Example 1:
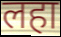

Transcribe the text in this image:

लहा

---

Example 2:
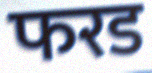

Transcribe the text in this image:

फरड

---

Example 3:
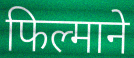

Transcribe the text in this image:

फिल्माने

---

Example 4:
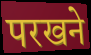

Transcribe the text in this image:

परखने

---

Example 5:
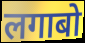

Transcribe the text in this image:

लगाबो